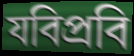
যবিপ্রবি